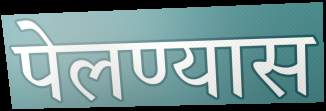
पेलण्यास